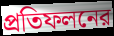
প্রতিফলনের